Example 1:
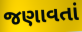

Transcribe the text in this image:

જણાવતાં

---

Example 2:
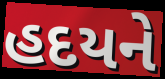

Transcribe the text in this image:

હદયને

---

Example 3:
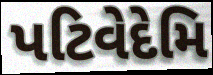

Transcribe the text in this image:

પટિવેદેમિ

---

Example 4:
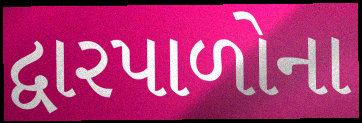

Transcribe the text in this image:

દ્વારપાળોના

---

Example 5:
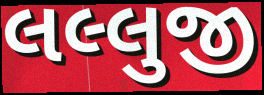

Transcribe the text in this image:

લલ્લુજી